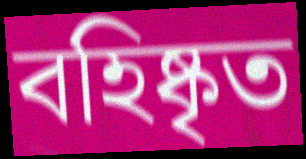
বহিষ্কৃত